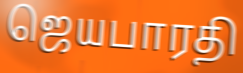
ஜெயபாரதி